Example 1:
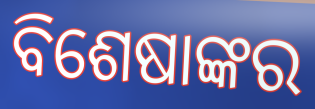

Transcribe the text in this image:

ବିଶେଷାଙ୍କର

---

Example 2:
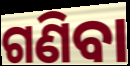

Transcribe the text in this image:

ଗଣିବା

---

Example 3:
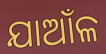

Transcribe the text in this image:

ଯାଆଁଳ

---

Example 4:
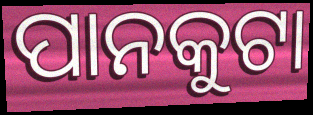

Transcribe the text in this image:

ପାନକୁଟା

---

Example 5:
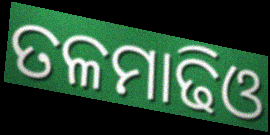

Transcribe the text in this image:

ତଳମାଢିଓ